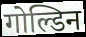
गोल्डिन